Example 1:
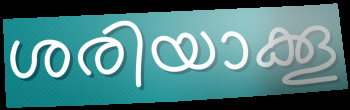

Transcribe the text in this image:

ശരിയാക്കൂ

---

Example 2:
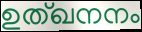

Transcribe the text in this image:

ഉത്ഖനനം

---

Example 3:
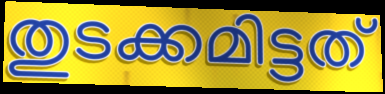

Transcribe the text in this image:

തുടക്കമിട്ടത്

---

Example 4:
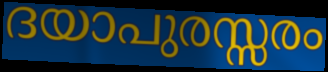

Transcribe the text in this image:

ദയാപുരസ്സരം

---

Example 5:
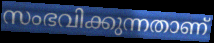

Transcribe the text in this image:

സംഭവിക്കുന്നതാണ്